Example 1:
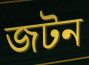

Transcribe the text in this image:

জটন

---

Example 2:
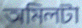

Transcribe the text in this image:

অমিলটা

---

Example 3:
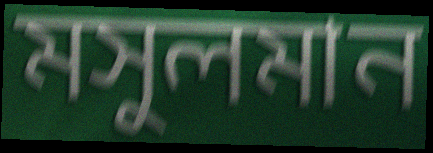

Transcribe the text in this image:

মসুলমান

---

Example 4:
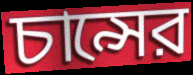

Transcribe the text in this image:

চান্সের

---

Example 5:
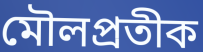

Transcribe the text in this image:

মৌলপ্রতীক